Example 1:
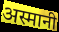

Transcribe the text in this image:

अस्मानी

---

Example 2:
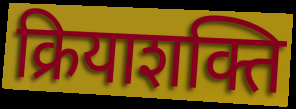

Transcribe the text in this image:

क्रियाशक्ति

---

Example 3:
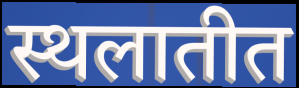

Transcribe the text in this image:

स्थलातीत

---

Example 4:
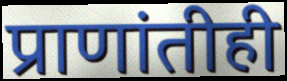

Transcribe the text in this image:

प्राणांतीही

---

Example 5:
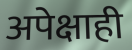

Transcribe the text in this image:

अपेक्षाही